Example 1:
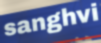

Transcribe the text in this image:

sanghvi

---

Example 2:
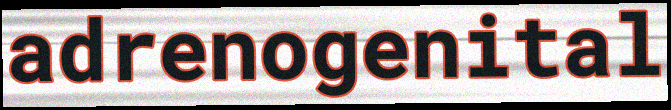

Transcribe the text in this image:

adrenogenital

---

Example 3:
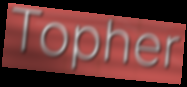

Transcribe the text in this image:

Topher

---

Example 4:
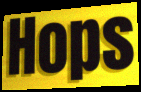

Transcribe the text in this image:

Hops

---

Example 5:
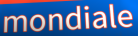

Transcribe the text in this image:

mondiale